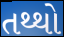
તથ્થો